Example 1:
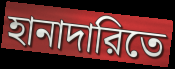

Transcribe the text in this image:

হানাদারিতে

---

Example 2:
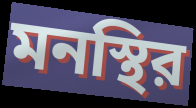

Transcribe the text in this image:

মনস্থির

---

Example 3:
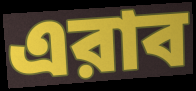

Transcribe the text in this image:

এরাব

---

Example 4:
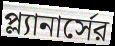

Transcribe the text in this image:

প্ল্যানার্সের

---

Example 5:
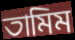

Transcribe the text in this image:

তামিম